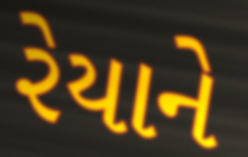
રેયાને